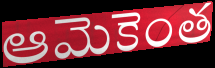
ఆమెకెంత